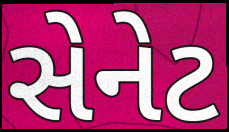
સેનેટ